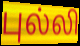
புல்லி